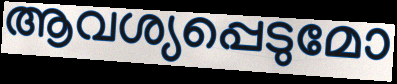
ആവശ്യപ്പെടുമോ